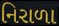
નિરાળા